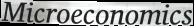
Microeconomics